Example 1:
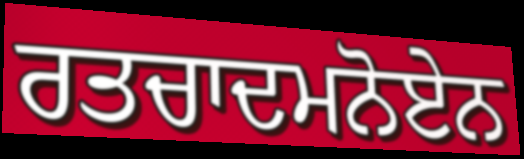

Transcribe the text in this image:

ਰਤਚਾਦਮਨੋਏਨ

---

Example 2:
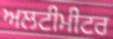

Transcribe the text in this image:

ਅਲਟੀਮੀਟਰ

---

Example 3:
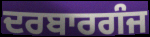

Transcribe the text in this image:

ਦਰਬਾਰਗੰਜ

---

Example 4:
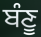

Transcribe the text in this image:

ਬੰਣੂ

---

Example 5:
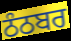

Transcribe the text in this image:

ਠੰਠਬਰ